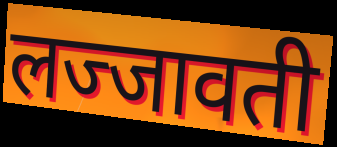
लज्जावती